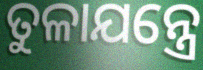
ତୁଳାଯନ୍ତ୍ରେ